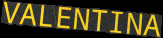
VALENTINA